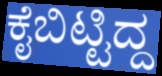
ಕೈಬಿಟ್ಟಿದ್ದ